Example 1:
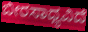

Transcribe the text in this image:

ಬೀರಸಾಧ್ಯವಿದೆ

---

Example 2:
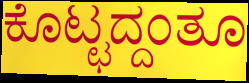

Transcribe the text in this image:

ಕೊಟ್ಟದ್ದಂತೂ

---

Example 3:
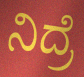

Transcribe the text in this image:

ನಿದ್ರೆ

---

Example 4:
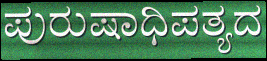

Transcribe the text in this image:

ಪುರುಷಾಧಿಪತ್ಯದ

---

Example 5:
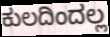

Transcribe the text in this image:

ಕುಲದಿಂದಲ್ಲ